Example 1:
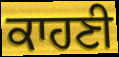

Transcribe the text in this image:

ਕਾਹਣੀ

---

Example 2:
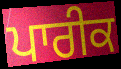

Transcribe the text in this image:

ਪਾਰੀਕ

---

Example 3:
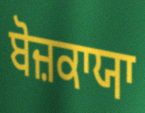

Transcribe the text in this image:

ਬੋਜ਼ਕਾਯਾ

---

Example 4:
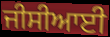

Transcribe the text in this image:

ਜੀਸੀਆਈ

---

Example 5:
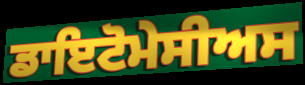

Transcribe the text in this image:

ਡਾਇਟੋਮੇਸੀਅਸ